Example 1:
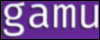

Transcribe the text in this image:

gamu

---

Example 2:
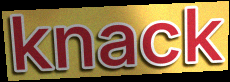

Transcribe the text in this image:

knack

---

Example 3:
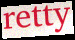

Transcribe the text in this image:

retty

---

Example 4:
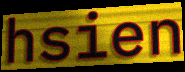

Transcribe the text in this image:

hsien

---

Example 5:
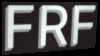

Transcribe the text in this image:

FRF